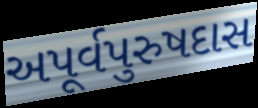
અપૂર્વપુરુષદાસ